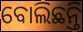
ବୋଲିଛନ୍ତି